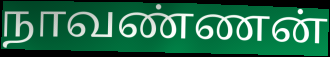
நாவண்ணன்